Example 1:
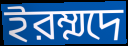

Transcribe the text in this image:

ইরম্মদে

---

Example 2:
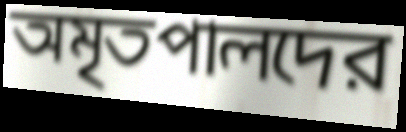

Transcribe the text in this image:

অমৃতপালদের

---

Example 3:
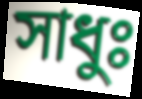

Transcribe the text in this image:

সাধুঃ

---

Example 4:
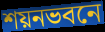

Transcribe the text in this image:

শয়নভবনে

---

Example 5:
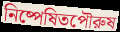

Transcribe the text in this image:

নিষ্পেষিতপৌরুষ